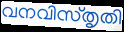
വനവിസ്തൃതി